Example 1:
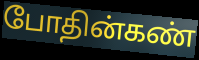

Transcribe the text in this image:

போதின்கண்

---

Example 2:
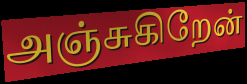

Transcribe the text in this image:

அஞ்சுகிறேன்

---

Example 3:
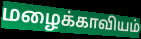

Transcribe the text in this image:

மழைக்காவியம்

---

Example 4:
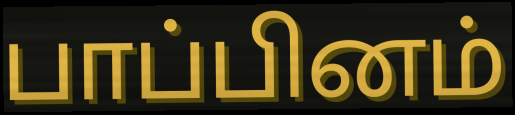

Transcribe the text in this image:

பாப்பினம்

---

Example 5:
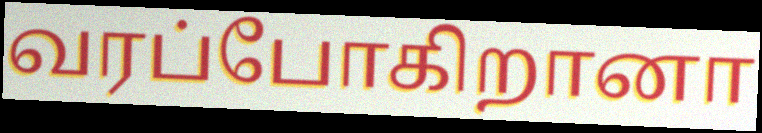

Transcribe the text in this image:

வரப்போகிறானா